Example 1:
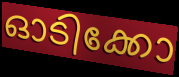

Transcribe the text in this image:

ഓടിക്കോ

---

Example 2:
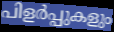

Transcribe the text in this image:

പിളർപ്പുകളും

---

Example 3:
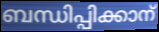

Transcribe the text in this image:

ബന്ധിപ്പിക്കാന്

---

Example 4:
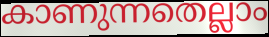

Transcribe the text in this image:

കാണുന്നതെല്ലാം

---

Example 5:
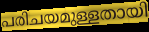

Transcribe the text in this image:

പരിചയമുള്ളതായി